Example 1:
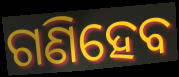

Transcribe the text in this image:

ଗଣିହେବ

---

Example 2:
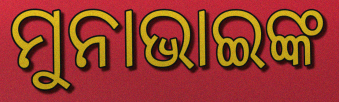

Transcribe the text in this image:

ମୁନାଭାଇଙ୍କ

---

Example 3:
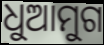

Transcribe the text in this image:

ଧୁଆମୁଗ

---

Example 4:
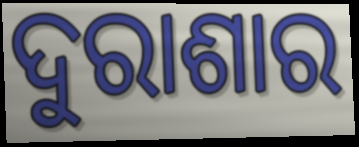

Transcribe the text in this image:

ଦୁରାଶାର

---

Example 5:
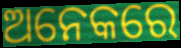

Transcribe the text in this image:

ଅନେକରେ